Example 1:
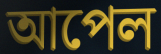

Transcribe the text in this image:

আপেল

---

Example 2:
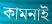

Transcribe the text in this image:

কামনাই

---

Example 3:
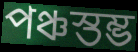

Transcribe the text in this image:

পঞ্চস্তম্ভ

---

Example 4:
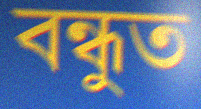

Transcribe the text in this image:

বন্ধুত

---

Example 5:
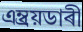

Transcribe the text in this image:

এম্ব্ৰয়ডাৰী